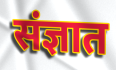
संज्ञात